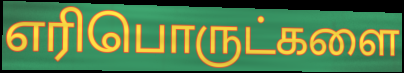
எரிபொருட்களை